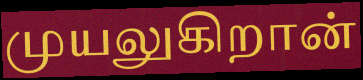
முயலுகிறான்